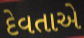
દેવતાએ